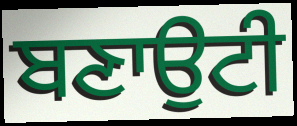
ਬਣਾਉਟੀ